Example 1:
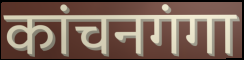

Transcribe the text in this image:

कांचनगंगा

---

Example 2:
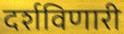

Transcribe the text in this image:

दर्शविणारी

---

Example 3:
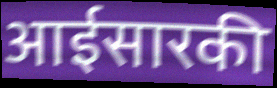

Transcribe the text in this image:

आईसारकी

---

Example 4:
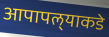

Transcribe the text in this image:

आपापल्याकडे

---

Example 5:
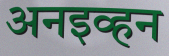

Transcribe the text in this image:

अनइव्हन